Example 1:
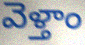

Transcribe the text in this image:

వెళ్తాం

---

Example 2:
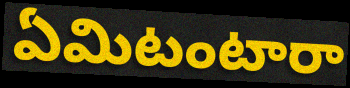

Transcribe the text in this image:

ఏమిటంటారా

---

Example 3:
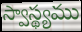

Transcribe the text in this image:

స్వాస్థ్యము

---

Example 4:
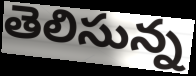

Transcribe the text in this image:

తెలిసున్న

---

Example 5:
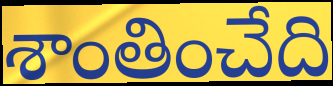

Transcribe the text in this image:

శాంతించేది